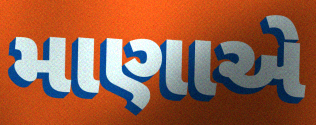
માણાએ